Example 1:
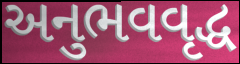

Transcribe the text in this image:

અનુભવવૃદ્ધ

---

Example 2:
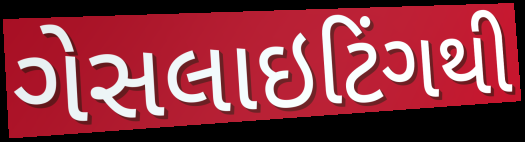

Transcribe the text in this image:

ગેસલાઇટિંગથી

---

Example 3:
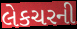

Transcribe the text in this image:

લેકચરની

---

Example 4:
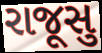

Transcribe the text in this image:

રાજૂસુ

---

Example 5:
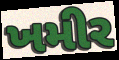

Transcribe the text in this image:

ખમીર